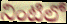
నింటిలో